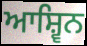
ਆਸ਼੍ਵਿਨ